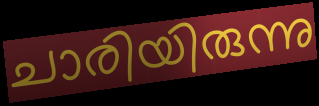
ചാരിയിരുന്നു